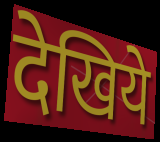
देखिये